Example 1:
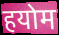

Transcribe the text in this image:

हयोम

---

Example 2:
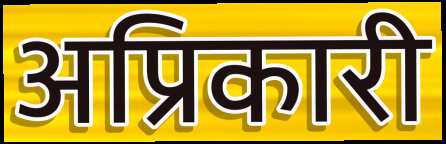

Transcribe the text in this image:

अप्रिकारी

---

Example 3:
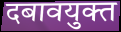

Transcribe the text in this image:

दबावयुक्त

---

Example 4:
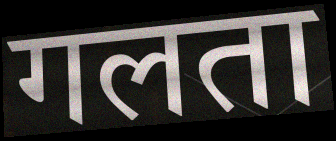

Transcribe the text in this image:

गलता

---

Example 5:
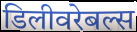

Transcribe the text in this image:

डिलीवरेबल्स